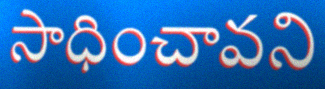
సాధించావని